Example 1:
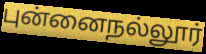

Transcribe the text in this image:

புன்னைநல்லூர்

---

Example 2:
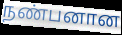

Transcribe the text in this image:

நண்பனான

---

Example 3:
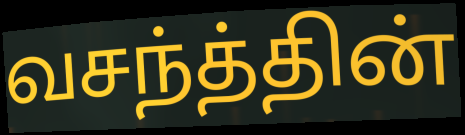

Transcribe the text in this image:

வசந்த்தின்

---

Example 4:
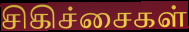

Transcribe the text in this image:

சிகிச்சைகள்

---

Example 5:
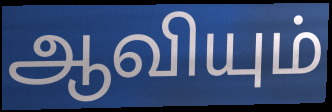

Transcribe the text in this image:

ஆவியும்